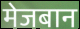
मेजबान